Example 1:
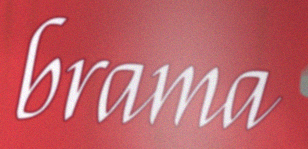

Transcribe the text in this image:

brama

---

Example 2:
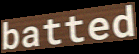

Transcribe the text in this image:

batted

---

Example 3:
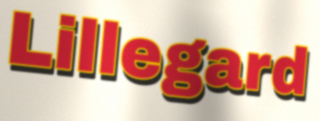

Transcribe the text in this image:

Lillegard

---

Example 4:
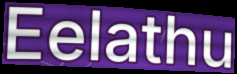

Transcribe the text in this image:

Eelathu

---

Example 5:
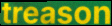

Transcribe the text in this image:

treason